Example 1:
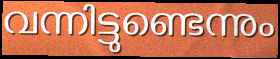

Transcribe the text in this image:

വന്നിട്ടുണ്ടെന്നും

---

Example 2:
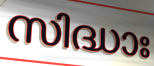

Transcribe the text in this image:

സിദ്ധാഃ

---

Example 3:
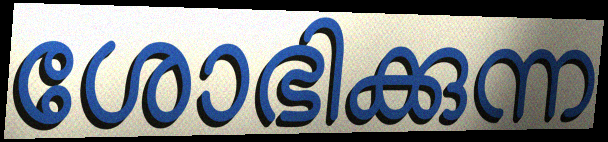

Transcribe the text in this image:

ശോഭിക്കുന്ന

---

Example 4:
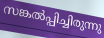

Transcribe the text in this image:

സങ്കൽപ്പിച്ചിരുന്നു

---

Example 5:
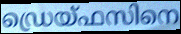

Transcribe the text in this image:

ഡ്രെയ്ഫസിനെ